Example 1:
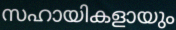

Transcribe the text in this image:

സഹായികളായും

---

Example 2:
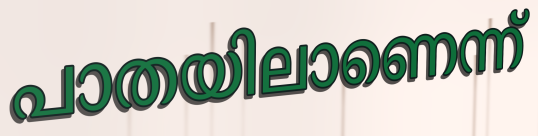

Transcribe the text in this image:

പാതയിലാണെന്ന്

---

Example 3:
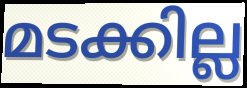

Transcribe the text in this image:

മടക്കില്ല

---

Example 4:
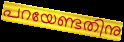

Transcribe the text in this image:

പറയേണ്ടതിനു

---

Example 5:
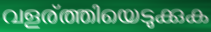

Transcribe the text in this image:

വളര്ത്തിയെടുക്കുക